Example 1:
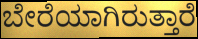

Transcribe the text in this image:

ಬೇರೆಯಾಗಿರುತ್ತಾರೆ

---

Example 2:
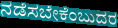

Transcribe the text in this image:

ನಡೆಸಬೇಕೆಂಬುದರ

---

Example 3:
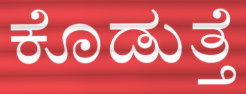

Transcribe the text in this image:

ಕೊಡುತ್ತೆ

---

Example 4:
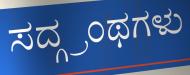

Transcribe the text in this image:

ಸದ್ಗ್ರಂಥಗಳು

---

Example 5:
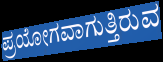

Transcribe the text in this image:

ಪ್ರಯೋಗವಾಗುತ್ತಿರುವ